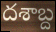
దశాబ్ద